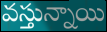
వస్తున్నాయి